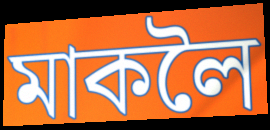
মাকলৈ